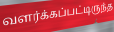
வளர்க்கப்பட்டிருந்த